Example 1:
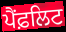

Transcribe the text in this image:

ਪੈਂਫ਼ਲਿਟ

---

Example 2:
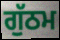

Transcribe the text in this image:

ਗੁੱਠਮ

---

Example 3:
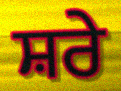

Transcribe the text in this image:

ਸ਼ਰੇ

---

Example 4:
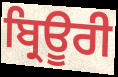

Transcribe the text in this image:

ਬ੍ਰਿਊਰੀ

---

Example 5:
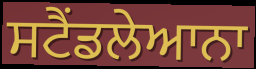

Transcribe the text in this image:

ਸਟੈਂਡਲੇਆਨਾ